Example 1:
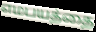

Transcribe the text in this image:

எமபயத்தை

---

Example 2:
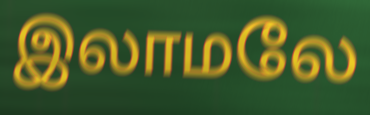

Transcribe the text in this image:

இலாமலே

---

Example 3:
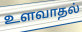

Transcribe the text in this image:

உளவாதல்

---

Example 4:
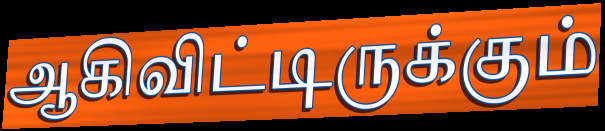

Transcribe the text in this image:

ஆகிவிட்டிருக்கும்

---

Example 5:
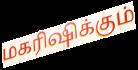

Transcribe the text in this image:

மகரிஷிக்கும்